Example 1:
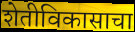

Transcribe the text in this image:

शेतीविकासाचा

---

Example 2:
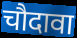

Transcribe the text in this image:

चौदावा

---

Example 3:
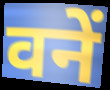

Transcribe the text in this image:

वनें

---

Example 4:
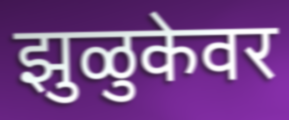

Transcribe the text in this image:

झुळुकेवर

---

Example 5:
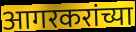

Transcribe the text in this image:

आगरकरांच्या